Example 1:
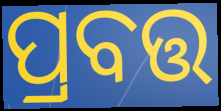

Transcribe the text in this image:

ପ୍ରବତ୍ତ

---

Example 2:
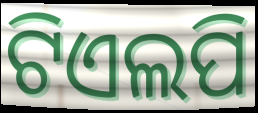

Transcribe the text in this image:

ଟିଏଲପି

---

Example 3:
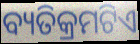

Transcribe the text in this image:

ବ୍ୟତିକ୍ରମଟିଏ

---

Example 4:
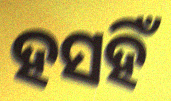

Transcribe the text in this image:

ହସହିଁ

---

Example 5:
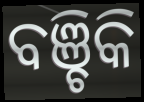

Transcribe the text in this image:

ବଞ୍ଚିକି